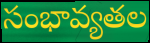
సంభావ్యతల